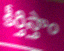
కీర్తిస్తాం